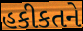
હકીકતને